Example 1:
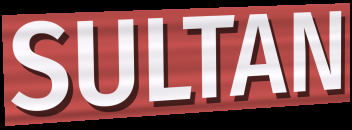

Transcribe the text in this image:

SULTAN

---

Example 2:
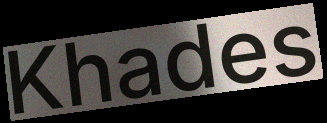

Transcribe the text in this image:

Khades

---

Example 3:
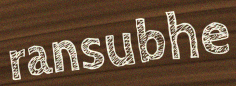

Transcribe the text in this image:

ransubhe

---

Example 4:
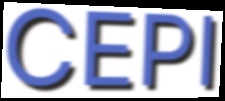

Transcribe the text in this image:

CEPI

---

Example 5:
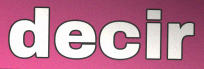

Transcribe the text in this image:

decir